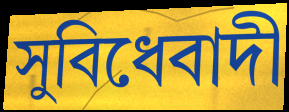
সুবিধেবাদী